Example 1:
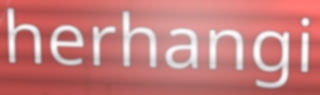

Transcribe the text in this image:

herhangi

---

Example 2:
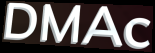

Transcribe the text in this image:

DMAc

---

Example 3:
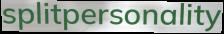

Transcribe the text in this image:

splitpersonality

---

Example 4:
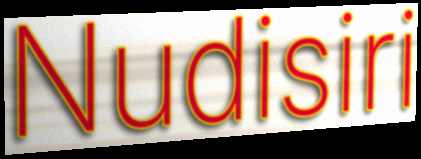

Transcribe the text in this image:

Nudisiri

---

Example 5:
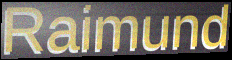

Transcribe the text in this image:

Raimund